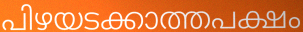
പിഴയടക്കാത്തപക്ഷം